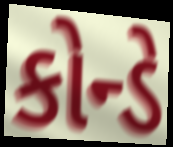
કોન્ડે